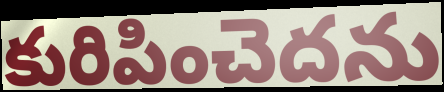
కురిపించెదను